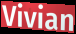
Vivian